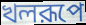
খলরূপে